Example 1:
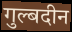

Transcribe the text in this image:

गुल्बदीन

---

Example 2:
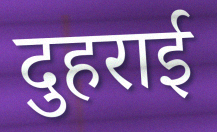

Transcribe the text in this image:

दुहराई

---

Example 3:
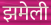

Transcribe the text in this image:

झमेली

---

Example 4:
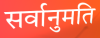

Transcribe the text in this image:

सर्वानुमति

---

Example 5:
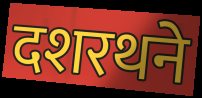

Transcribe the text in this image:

दशरथने